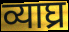
व्याघ्र